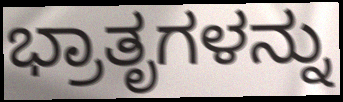
ಭ್ರಾತೃಗಳನ್ನು